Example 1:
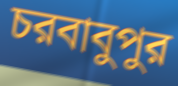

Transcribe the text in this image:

চরবাবুপুর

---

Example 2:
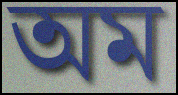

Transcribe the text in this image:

অম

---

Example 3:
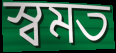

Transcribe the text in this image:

স্বমত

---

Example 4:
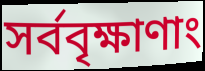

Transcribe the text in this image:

সর্ববৃক্ষাণাং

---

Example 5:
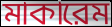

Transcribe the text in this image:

মাকারেম